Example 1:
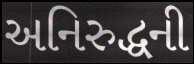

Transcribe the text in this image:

અનિરુદ્ધની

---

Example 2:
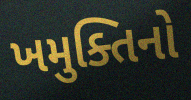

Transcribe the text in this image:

ખમુક્તિનો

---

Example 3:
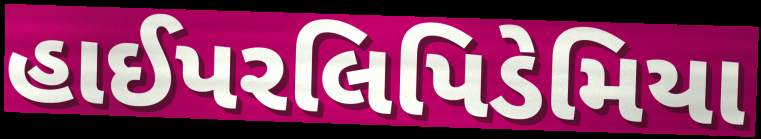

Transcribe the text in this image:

હાઈપરલિપિડેમિયા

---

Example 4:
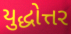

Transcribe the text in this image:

યુદ્ધોત્તર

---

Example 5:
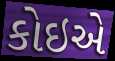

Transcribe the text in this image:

કોઇએ